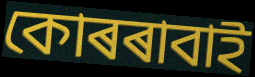
কোৰৰাবাই